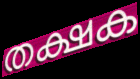
തക്ഷക